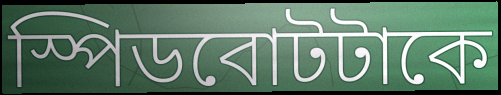
স্পিডবোটটাকে